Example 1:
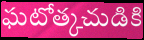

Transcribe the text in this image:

ఘటోత్కచుడికి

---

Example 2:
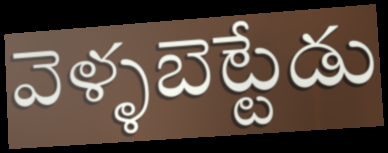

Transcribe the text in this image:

వెళ్ళబెట్టేడు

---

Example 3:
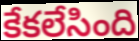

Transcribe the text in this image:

కేకలేసింది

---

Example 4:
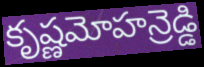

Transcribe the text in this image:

కృష్ణమోహన్రెడ్డి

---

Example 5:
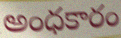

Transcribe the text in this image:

అంధకారం